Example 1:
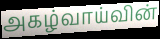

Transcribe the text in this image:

அகழ்வாய்வின்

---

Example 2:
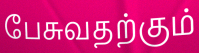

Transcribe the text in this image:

பேசுவதற்கும்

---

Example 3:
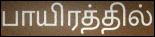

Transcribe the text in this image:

பாயிரத்தில்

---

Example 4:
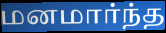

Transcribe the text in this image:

மனமார்ந்த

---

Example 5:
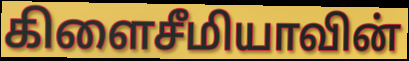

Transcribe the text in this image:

கிளைசீமியாவின்